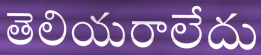
తెలియరాలేదు